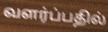
வளர்ப்பதில்